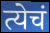
त्येचं